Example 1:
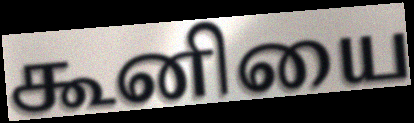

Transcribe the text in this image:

கூனியை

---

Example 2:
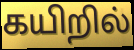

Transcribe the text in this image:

கயிறில்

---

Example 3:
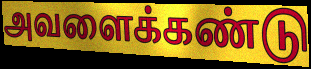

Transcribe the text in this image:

அவளைக்கண்டு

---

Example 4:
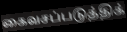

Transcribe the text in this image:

கைவசப்படுத்திக்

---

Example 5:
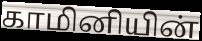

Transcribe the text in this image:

காமினியின்